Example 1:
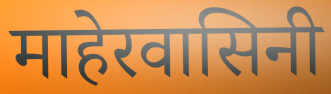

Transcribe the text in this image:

माहेरवासिनी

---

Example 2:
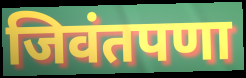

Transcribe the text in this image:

जिवंतपणा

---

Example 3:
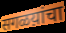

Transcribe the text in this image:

सगळय़ांचा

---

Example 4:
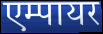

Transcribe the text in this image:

एम्पायर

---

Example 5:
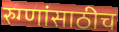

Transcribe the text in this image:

रुग्णांसाठीच